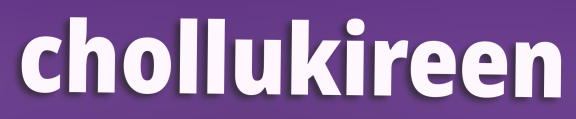
chollukireen